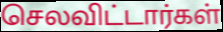
செலவிட்டார்கள்